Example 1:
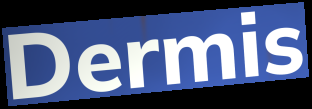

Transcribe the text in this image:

Dermis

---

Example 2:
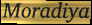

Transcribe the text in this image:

Moradiya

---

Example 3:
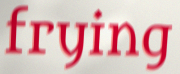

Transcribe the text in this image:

frying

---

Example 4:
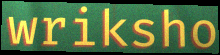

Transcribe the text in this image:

wriksho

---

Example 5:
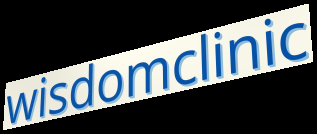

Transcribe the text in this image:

wisdomclinic